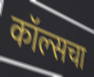
कॉल्सचा